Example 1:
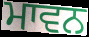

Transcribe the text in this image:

ਮਾਵਨ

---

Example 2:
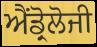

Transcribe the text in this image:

ਐਂਡ੍ਰੋਲੋਜੀ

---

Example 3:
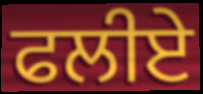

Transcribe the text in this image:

ਫਲੀਏ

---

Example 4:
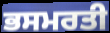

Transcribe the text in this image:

ਭਸਮਰਤੀ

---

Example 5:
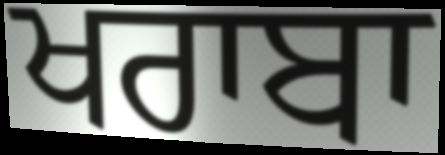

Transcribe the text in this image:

ਖਰਾਬਾ